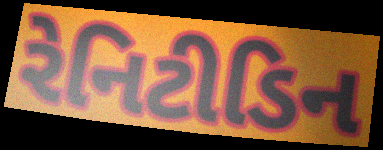
રેનિટીડિન